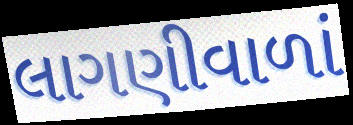
લાગણીવાળાં